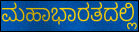
ಮಹಾಭಾರತದಲ್ಲಿ